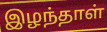
இழந்தாள்